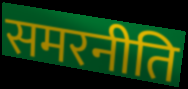
समरनीति